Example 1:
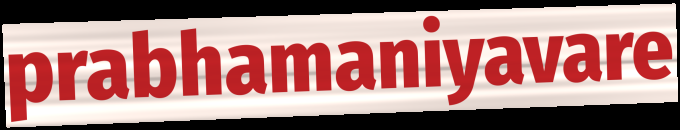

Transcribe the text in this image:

prabhamaniyavare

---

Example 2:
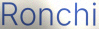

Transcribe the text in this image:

Ronchi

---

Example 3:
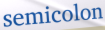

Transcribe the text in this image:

semicolon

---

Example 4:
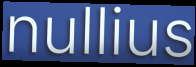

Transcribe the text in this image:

nullius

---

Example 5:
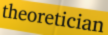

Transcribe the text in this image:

theoretician